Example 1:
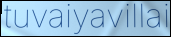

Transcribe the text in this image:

tuvaiyavillai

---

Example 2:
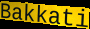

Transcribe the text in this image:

Bakkati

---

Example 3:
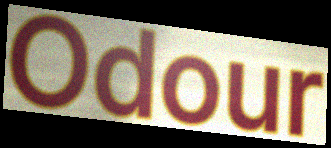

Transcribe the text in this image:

Odour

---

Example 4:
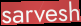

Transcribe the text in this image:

sarvesh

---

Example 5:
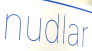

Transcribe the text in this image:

nudlar